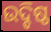
ଉଦ୍ଦିଷ୍ଠ